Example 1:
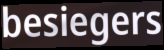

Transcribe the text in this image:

besiegers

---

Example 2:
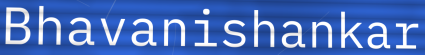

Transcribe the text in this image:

Bhavanishankar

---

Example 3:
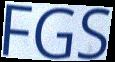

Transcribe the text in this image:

FGS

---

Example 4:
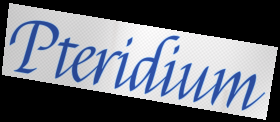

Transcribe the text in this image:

Pteridium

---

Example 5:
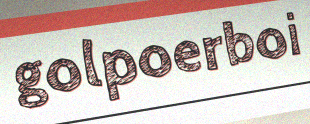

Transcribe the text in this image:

golpoerboi